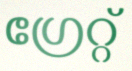
ഗ്രേറ്റ്